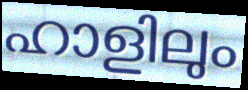
ഹാളിലും